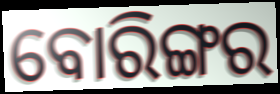
ବୋରିଙ୍ଗର